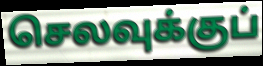
செலவுக்குப்